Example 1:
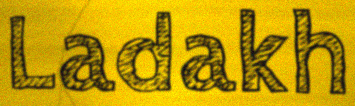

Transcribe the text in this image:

Ladakh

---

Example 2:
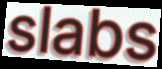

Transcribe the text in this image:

slabs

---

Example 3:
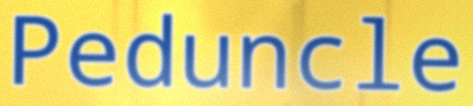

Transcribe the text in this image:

Peduncle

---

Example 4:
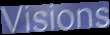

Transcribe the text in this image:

Visions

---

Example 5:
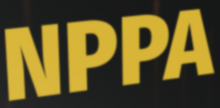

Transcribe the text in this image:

NPPA